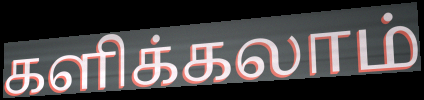
களிக்கலாம்